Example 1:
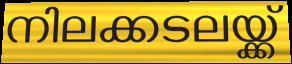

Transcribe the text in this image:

നിലക്കടലയ്ക്ക്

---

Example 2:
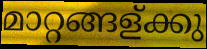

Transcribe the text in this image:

മാറ്റങ്ങള്ക്കു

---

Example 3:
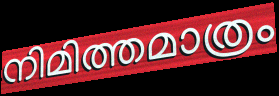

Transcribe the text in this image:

നിമിത്തമാത്രം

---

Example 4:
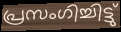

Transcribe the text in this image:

പ്രസംഗിച്ചിട്ടു്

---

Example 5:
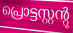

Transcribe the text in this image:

പ്രൊട്ടസ്റ്റന്റു